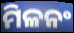
ମିଳନଂ